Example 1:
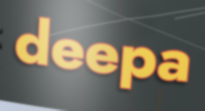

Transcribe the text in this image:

deepa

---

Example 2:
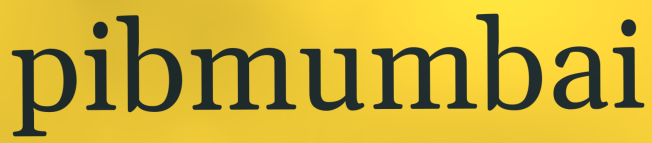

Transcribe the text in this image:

pibmumbai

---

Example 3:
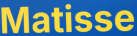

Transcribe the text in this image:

Matisse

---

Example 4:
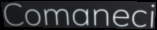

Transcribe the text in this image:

Comaneci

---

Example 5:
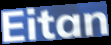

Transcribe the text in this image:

Eitan